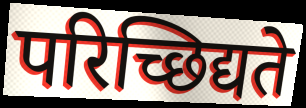
परिच्छिद्यते